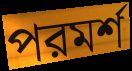
পরমর্শ